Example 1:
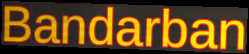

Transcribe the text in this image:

Bandarban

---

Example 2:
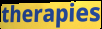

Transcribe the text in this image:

therapies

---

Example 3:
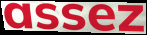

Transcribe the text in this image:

assez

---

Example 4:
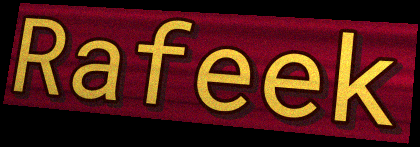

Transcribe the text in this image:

Rafeek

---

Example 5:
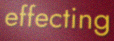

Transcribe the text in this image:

effecting